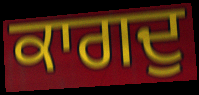
ਕਾਗਦੁ